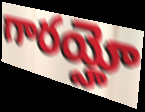
గారయ్హో